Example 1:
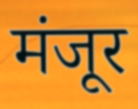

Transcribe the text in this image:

मंजूर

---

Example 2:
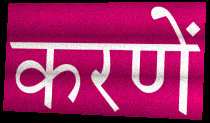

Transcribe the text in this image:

करणें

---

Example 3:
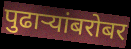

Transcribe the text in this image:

पुढाऱ्यांबरोबर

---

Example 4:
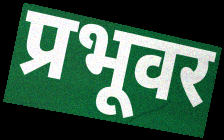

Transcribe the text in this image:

प्रभूवर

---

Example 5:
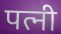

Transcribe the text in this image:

पत्‍नी